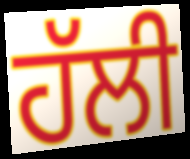
ਹੱਲੀ